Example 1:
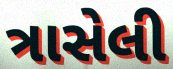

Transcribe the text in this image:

ત્રાસેલી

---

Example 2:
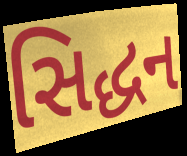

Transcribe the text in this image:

સિદ્ધન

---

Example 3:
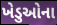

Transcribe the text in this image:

ખેડુઓના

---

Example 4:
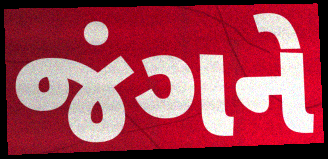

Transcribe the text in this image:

જંગને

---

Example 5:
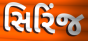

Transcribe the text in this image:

સિરિંજ